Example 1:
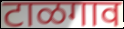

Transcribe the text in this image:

टाळगाव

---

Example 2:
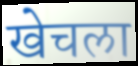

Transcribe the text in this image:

खेचला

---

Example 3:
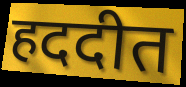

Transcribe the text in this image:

हददीत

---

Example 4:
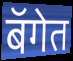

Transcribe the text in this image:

बॅगेत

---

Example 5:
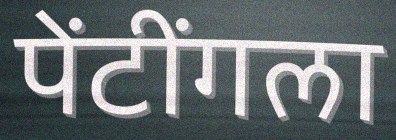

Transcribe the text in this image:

पेंटींगला